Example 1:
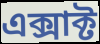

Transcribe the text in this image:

এক্সাক্ট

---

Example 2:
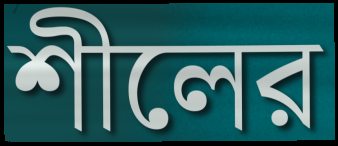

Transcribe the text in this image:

শীলের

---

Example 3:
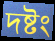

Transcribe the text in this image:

দষ্টং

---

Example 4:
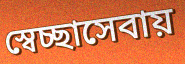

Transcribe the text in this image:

স্বেচ্ছাসেবায়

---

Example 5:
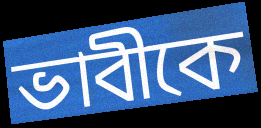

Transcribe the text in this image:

ভাবীকে